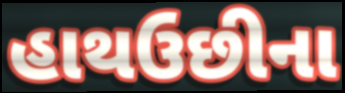
હાથઉછીના